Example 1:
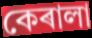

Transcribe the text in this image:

কেৰালা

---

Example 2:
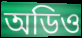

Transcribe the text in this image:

অডিও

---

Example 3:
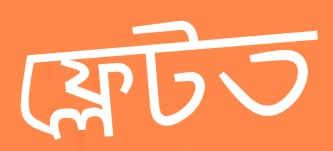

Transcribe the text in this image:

ফ্লেটত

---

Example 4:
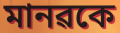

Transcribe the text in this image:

মানৱকে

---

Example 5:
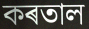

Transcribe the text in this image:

কৰতাল